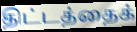
திட்டத்தைக்